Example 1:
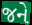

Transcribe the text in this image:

જને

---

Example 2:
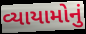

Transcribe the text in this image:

વ્યાયામોનું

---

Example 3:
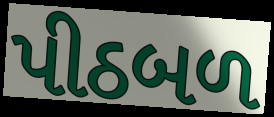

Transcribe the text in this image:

પીઠબળ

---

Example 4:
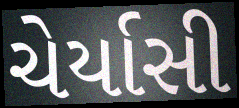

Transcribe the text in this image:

ચેર્યાસી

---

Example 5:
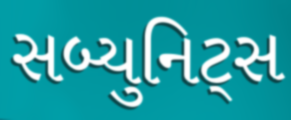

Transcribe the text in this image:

સબ્યુનિટ્સ